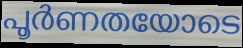
പൂർണതയോടെ